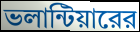
ভলান্টিয়ারের